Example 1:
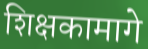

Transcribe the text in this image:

शिक्षकामागे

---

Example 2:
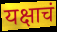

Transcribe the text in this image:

यक्षाचं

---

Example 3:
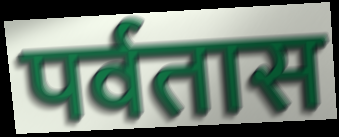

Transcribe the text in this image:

पर्वतास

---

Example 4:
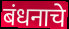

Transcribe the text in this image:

बंधनाचे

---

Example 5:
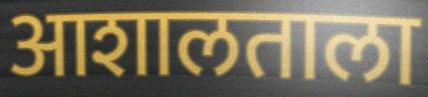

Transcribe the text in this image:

आशालताला